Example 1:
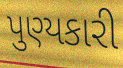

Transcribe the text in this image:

પુણ્યકારી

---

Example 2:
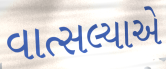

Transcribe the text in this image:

વાત્સલ્યાએ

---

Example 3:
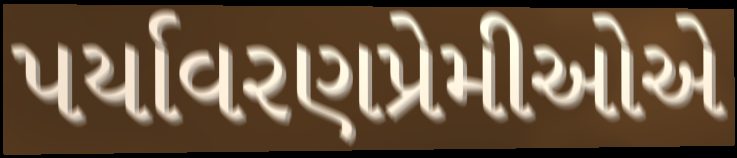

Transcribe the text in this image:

પર્યાવરણપ્રેમીઓએ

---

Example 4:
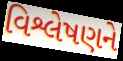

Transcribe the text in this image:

વિશ્લેષણને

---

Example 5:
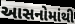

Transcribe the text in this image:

આસનોમાંથી